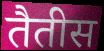
तैतीस